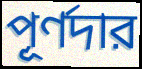
পূর্ণদার